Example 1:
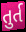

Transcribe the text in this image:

તુર્ત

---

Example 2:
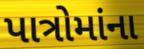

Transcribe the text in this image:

પાત્રોમાંના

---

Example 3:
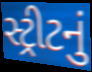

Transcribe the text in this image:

સ્ટ્રીટનું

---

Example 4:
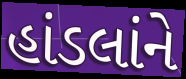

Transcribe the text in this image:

હાંડલાંને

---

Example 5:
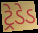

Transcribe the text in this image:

ટ્રેડેડ